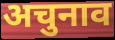
अचुनाव